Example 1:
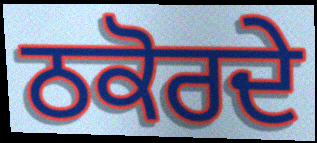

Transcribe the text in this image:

ਠਕੋਰਦੇ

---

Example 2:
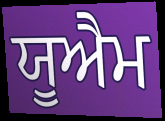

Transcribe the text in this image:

ਯੂਐਮ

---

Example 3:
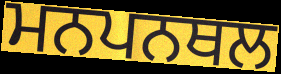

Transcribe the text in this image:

ਮਨਪਨਥਲ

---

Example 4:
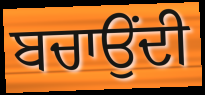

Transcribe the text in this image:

ਬਚਾਉਂਦੀ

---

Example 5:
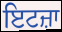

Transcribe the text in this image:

ਇਟਜ਼ਾ